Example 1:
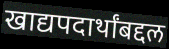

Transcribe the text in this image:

खाद्यपदार्थांबद्दल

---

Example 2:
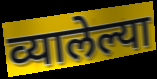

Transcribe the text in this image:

व्यालेल्या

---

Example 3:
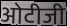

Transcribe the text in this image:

ओटीजी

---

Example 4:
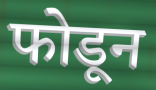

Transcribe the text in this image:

फोडून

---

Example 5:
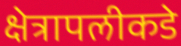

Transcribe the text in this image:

क्षेत्रापलीकडे